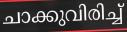
ചാക്കുവിരിച്ച്